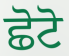
ਛੋਟੋ